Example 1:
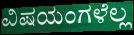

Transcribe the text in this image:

ವಿಷಯಂಗಳೆಲ್ಲ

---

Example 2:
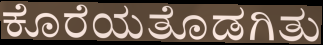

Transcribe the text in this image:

ಕೊರೆಯತೊಡಗಿತು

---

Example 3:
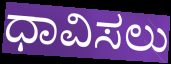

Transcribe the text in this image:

ಧಾವಿಸಲು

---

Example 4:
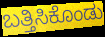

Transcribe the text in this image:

ಬತ್ತಿಸಿಕೊಂಡು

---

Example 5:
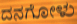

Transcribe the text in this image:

ದನಗೋಳು